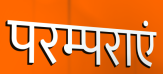
परम्पराएं